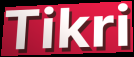
Tikri